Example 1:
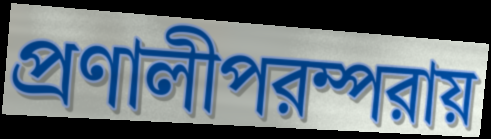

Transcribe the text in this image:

প্রণালীপরম্পরায়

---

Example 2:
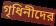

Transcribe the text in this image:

গৃধিনীদের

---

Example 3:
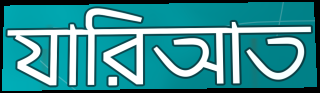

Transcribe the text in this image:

যারিআত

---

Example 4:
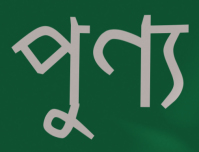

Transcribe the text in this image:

পুণ্য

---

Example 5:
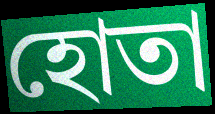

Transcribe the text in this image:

হোতা